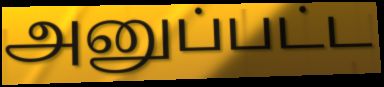
அனுப்பட்ட